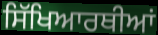
ਸਿੱਖਿਆਰਥੀਆਂ